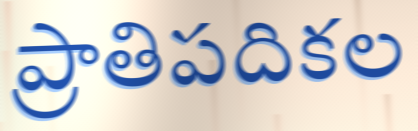
ప్రాతిపదికల